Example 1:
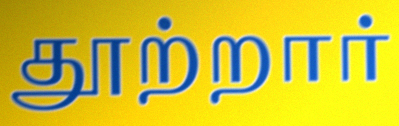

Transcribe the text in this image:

தூற்றார்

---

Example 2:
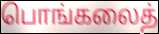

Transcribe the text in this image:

பொங்கலைத்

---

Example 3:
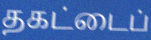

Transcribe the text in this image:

தகட்டைப்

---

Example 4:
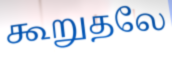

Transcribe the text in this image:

கூறுதலே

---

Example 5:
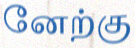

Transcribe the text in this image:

னேற்கு